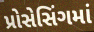
પ્રોસેસિંગમાં